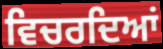
ਵਿਚਰਦਿਆਂ